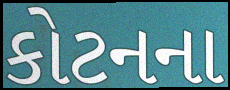
કોટનના